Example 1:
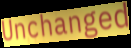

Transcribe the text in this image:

Unchanged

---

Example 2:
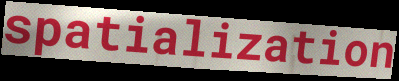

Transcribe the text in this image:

spatialization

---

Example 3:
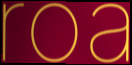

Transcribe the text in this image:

roa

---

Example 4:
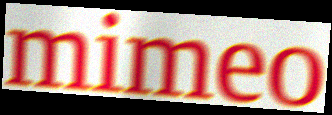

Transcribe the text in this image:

mimeo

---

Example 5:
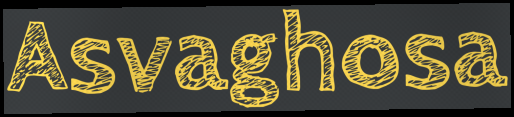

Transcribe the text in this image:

Asvaghosa